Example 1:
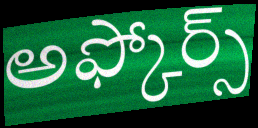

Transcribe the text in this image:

అఫ్కోర్స్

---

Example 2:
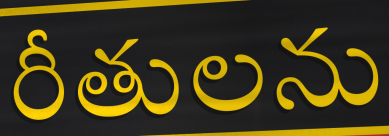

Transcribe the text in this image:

రీతులను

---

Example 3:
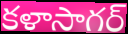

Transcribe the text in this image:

కళాసాగర్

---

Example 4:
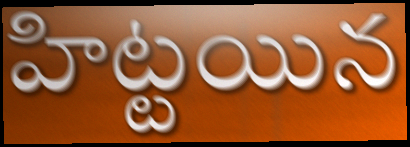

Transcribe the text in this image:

హిట్టయిన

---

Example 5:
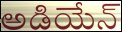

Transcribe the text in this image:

అడియేన్